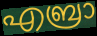
എബ്രാ